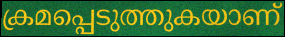
ക്രമപ്പെടുത്തുകയാണ്